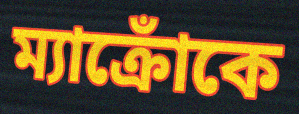
ম্যাক্রোঁকে